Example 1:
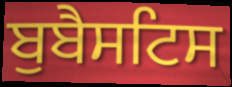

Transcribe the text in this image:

ਬੁਬੈਸਟਿਸ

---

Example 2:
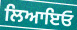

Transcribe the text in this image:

ਲਿਆਇਓ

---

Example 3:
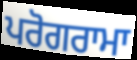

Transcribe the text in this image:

ਪਰੋਗਰਾਮਾ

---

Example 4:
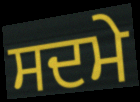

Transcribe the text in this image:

ਸਦਮੇ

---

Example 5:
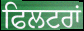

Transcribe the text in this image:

ਫਿਲਟਰਾਂ